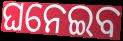
ଘନେଇବ